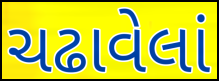
ચઢાવેલાં